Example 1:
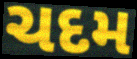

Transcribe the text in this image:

ચદમ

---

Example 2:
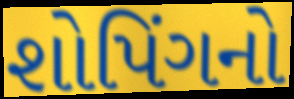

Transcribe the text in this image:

શોપિંગનો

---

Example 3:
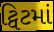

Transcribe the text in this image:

ટ્વિટમાં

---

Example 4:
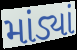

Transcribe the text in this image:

માંડ્યાં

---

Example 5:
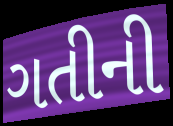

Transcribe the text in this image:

ગતીની